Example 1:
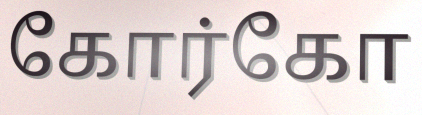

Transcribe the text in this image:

கோர்கோ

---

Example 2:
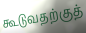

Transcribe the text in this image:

கூடுவதற்குத்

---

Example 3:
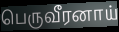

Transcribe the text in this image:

பெருவீரனாய்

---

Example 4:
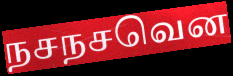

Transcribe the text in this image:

நசநசவென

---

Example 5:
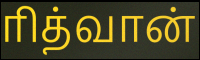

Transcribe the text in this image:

ரித்வான்